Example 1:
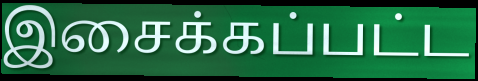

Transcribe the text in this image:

இசைக்கப்பட்ட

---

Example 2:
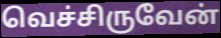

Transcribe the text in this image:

வெச்சிருவேன்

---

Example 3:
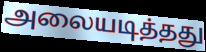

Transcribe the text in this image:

அலையடித்தது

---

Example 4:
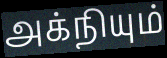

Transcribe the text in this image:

அக்நியும்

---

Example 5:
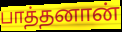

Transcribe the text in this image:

பாத்தனான்